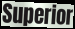
Superior